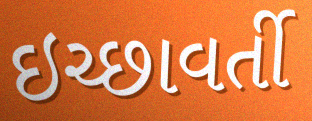
ઇચ્છાવર્તી